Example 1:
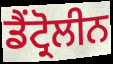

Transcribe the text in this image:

ਡੈਂਟ੍ਰੋਲੀਨ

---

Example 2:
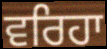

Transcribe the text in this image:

ਵਰਿਹਾ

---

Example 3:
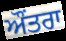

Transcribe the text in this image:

ਔਂਤਰਾ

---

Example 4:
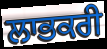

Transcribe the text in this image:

ਲਾਭਕਰੀ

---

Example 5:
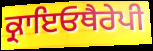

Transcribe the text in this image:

ਕ੍ਰਾਇਓਥੈਰੇਪੀ